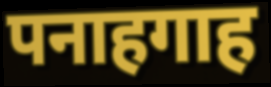
पनाहगाह